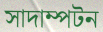
সাদাম্পটন